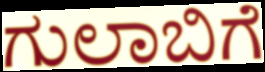
ಗುಲಾಬಿಗೆ